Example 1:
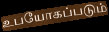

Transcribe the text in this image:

உபயோகப்படும்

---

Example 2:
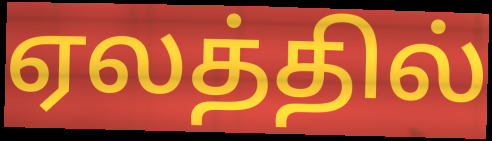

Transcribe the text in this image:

ஏலத்தில்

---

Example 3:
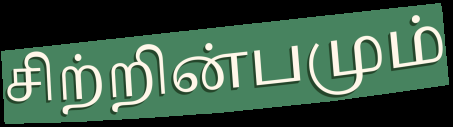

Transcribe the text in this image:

சிற்றின்பமும்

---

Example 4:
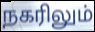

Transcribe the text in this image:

நகரிலும்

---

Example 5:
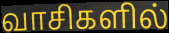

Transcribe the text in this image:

வாசிகளில்